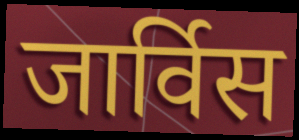
जार्विस